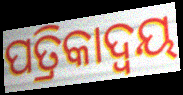
ପତ୍ରିକାଦ୍ୱୟ